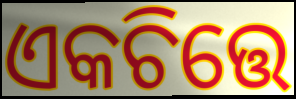
ଏକଚିତ୍ତେ